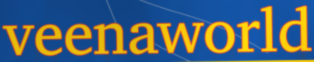
veenaworld